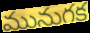
మునుగక